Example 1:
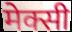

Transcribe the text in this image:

मेक्सी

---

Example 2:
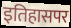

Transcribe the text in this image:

इतिहासपर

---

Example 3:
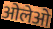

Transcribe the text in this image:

ओलेओ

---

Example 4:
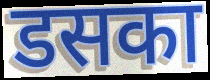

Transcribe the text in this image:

डसका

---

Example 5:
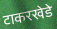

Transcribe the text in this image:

टाकरखेडे